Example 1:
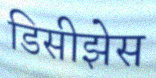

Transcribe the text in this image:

डिसीझेस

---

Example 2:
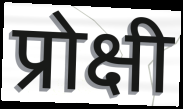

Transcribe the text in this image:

प्रोक्षी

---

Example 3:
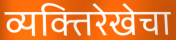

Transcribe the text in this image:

व्यक्तिरेखेचा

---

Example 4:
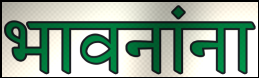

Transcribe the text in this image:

भावनांना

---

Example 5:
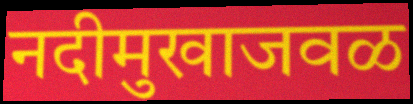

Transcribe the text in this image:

नदीमुखाजवळ